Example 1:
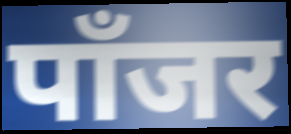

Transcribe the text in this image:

पाँजर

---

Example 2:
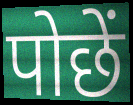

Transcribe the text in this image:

पोछें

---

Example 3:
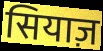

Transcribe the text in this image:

सियाज़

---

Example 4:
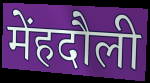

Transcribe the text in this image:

मेंहदौली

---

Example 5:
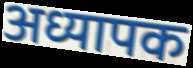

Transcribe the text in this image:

अध्यापक